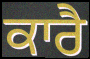
ਕਾਰੈ